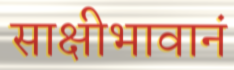
साक्षीभावानं